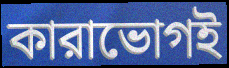
কারাভোগই